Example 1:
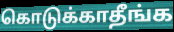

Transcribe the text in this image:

கொடுக்காதீங்க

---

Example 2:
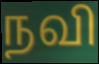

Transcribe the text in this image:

நவி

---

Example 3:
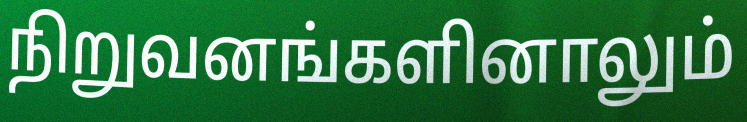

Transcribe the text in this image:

நிறுவனங்களினாலும்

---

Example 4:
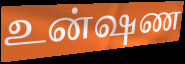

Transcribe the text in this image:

உன்ஷண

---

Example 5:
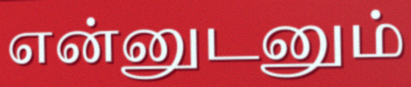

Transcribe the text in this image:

என்னுடனும்